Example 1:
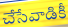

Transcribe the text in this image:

చేసేవాడికీ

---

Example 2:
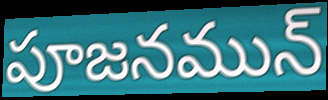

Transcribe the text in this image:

పూజనమున్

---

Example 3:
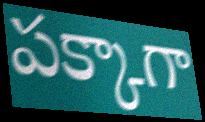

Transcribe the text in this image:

పక్కాగా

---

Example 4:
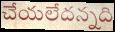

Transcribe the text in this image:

చేయలేదన్నది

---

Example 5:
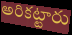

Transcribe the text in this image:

అరికట్టారు